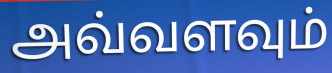
அவ்வளவும்